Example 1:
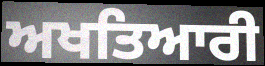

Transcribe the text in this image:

ਅਖਤਿਆਰੀ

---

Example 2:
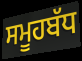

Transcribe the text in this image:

ਸਮੂਹਬੱਧ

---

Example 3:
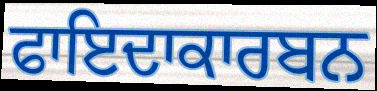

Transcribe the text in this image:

ਫਾਇਦਾਕਾਰਬਨ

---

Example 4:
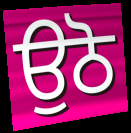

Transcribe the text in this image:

ਉਠੋ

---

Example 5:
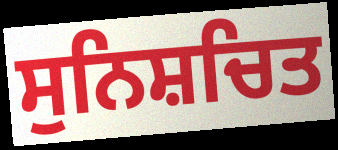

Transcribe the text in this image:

ਸੁਨਿਸ਼ਚਿਤ